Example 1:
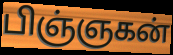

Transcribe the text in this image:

பிஞ்ஞகன்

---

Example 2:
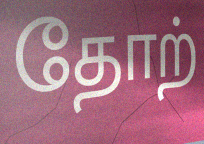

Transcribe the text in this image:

தோற்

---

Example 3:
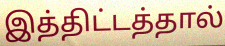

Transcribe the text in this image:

இத்திட்டத்தால்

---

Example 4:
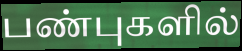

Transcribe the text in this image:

பண்புகளில்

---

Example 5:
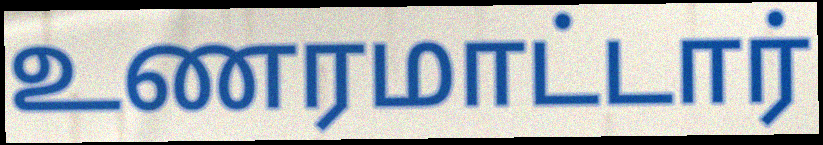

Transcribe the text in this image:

உணரமாட்டார்